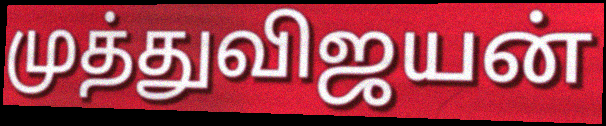
முத்துவிஜயன்